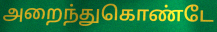
அறைந்துகொண்டே